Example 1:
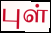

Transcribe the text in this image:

புள்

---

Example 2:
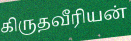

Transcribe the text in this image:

கிருதவீரியன்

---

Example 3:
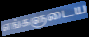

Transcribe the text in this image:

எங்களுடைய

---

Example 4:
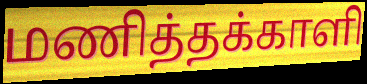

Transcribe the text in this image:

மணித்தக்காளி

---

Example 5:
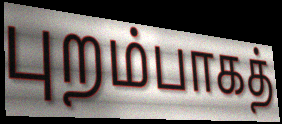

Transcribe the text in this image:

புறம்பாகத்